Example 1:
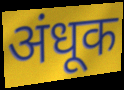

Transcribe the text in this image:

अंधूक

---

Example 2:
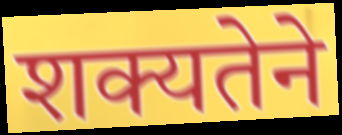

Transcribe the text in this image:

शक्यतेने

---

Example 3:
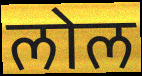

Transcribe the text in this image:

लोल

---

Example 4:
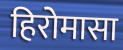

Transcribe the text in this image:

हिरोमासा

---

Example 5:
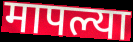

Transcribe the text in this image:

मापल्या